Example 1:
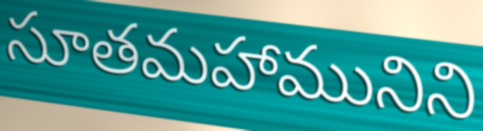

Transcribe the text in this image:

సూతమహామునిని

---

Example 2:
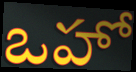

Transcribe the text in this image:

ఒహో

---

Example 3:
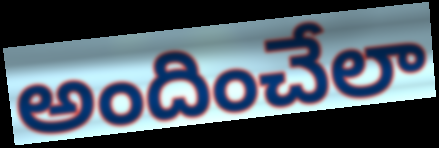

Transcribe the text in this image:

అందించేలా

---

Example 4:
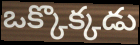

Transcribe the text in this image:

ఒక్కొక్కడు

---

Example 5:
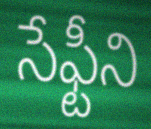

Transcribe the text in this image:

సేఫ్టీని